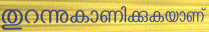
തുറന്നുകാണിക്കുകയാണ്